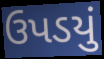
ઉપડયું